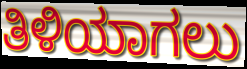
ತಿಳಿಯಾಗಲು